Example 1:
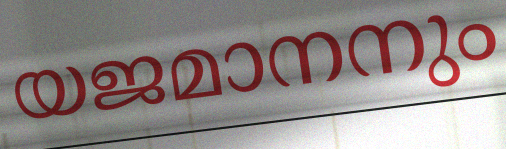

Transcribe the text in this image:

യജമാനനും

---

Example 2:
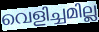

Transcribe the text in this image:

വെളിച്ചമില്ല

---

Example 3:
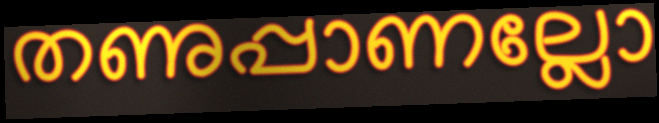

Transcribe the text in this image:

തണുപ്പാണല്ലോ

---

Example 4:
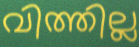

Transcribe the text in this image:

വിത്തില്ല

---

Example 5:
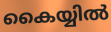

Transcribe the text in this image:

കൈയ്യിൽ